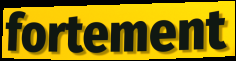
fortement